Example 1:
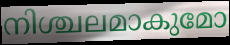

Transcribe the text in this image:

നിശ്ചലമാകുമോ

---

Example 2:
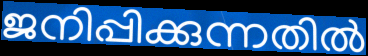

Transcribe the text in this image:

ജനിപ്പിക്കുന്നതിൽ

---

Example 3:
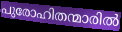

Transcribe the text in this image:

പുരോഹിതന്മാരിൽ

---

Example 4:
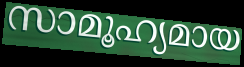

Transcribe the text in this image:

സാമൂഹ്യമായ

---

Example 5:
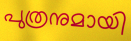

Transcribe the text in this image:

പുത്രനുമായി